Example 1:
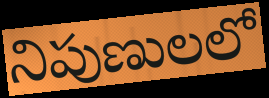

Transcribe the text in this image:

నిపుణులలో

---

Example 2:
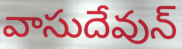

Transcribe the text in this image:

వాసుదేవున్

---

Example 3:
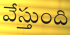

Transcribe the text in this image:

వేస్తుంది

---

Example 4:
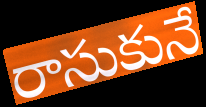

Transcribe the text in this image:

రాసుకునే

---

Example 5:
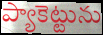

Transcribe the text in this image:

ప్యాకెట్టును